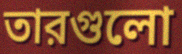
তারগুলো